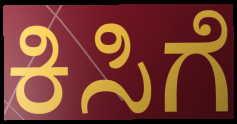
ಕಿಸಿಗೆ